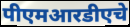
पीएमआरडीएचे